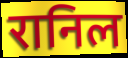
रानिल